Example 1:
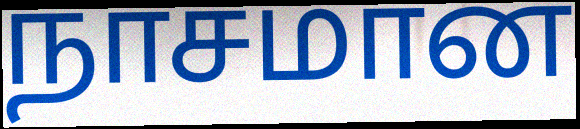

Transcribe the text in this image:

நாசமான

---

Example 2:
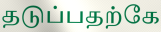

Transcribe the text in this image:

தடுப்பதற்கே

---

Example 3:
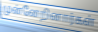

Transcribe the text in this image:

முன்னேறினார்கள்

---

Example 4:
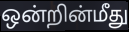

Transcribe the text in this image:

ஒன்றின்மீது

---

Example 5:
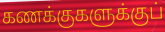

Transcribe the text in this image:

கணக்குகளுக்குப்